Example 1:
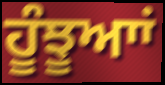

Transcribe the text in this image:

ਹੂੰਝੂਆਾਂ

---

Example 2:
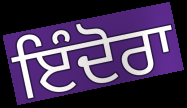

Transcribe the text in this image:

ਇੰਦੋਰਾ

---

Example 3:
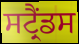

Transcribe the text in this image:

ਸਟ੍ਰੈਂਡਸ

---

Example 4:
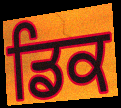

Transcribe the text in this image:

ਡਿਕ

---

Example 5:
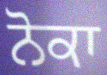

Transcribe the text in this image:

ਨੋਕਾ